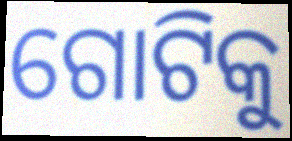
ଗୋଟିକୁ